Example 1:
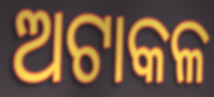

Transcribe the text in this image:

ଅଟାକଳ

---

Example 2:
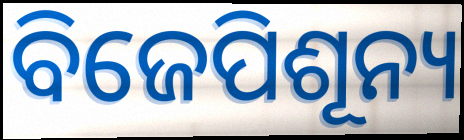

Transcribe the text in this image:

ବିଜେପିଶୂନ୍ୟ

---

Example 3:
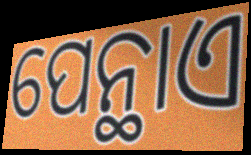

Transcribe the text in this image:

ପେନ୍ଥାଏ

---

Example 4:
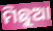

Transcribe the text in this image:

ମିଛୁଆ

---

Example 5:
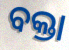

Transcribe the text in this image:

ବକ୍ତା